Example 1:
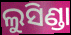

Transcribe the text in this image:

ଲୁସିଣ୍ଡା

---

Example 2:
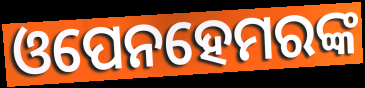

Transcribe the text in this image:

ଓପେନହେମରଙ୍କ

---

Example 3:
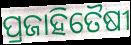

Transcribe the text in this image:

ପ୍ରଜାହିତୈଷୀ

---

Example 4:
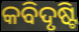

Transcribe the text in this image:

କବିଦୃଷ୍ଟି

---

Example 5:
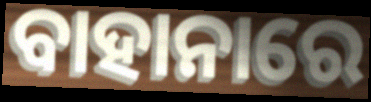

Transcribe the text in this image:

ବାହାନାରେ